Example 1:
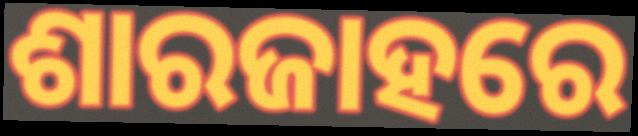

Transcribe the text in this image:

ଶାରଜାହରେ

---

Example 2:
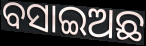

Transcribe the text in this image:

ବସାଇଅଛ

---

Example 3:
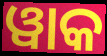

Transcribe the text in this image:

ୱାକ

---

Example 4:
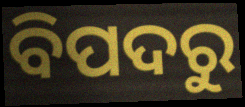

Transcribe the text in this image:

ବିପଦରୁ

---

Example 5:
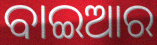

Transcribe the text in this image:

ବାଇଆର